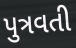
પુત્રવતી